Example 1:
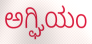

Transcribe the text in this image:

ಅಗ್ಘಿಯಂ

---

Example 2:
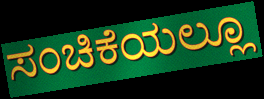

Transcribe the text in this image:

ಸಂಚಿಕೆಯಲ್ಲೂ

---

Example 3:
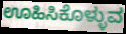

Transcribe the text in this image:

ಊಹಿಸಿಕೊಳ್ಳುವ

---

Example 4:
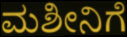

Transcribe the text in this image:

ಮಶೀನಿಗೆ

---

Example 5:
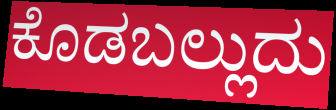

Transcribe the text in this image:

ಕೊಡಬಲ್ಲುದು